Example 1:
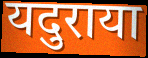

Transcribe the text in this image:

यदुराया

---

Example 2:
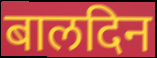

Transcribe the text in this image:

बालदिन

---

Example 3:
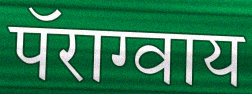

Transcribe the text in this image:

पॅराग्वाय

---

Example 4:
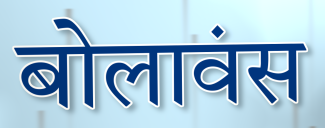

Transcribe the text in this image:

बोलावंस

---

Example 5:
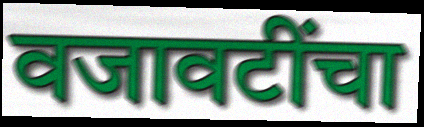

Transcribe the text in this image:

वजावटींचा